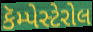
કૅમ્પેસ્ટેરોલ